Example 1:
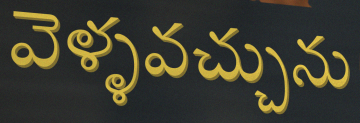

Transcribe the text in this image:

వెళ్ళవచ్చును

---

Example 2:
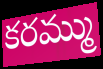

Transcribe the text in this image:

కరమ్ము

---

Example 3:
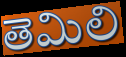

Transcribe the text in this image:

తెమిలి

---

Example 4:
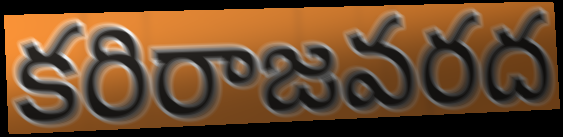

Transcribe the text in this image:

కరిరాజవరద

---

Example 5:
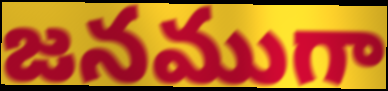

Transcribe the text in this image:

జనముగా